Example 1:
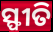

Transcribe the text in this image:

ସ୍ଫୀତି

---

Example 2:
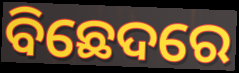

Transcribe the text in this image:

ବିଛେଦରେ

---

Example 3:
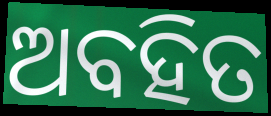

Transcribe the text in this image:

ଅବହିତ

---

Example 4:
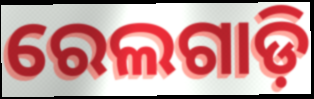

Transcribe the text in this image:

ରେଲଗାଡ଼ି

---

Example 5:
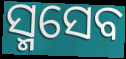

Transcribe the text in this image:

ସ୍ମସେବ